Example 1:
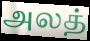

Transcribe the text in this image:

அலத்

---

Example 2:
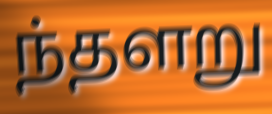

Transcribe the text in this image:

ந்தளறு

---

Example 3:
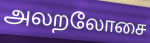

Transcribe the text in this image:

அலறலோசை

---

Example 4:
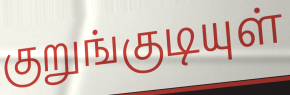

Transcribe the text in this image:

குறுங்குடியுள்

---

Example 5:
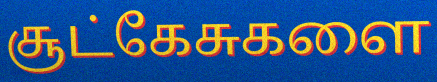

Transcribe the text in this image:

சூட்கேசுகளை